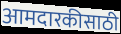
आमदारकीसाठी